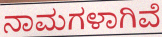
ನಾಮಗಳಾಗಿವೆ